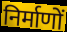
निर्माणों